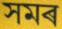
সমৰ